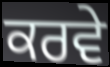
ਕਰਵੇ